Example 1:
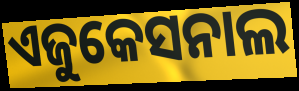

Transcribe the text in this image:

ଏଜୁକେସନାଲ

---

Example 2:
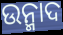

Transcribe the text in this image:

ଉନ୍ମାଦ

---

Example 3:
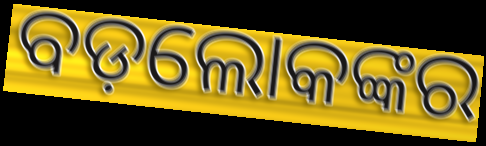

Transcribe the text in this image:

ବଡ଼ଲୋକଙ୍କର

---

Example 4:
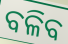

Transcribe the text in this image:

ବଳିବ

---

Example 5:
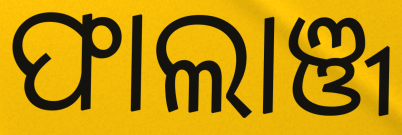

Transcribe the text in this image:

ଫାଲାଞ୍ଜ